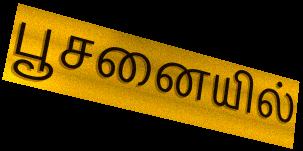
பூசனையில்